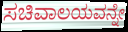
ಸಚಿವಾಲಯವನ್ನೇ